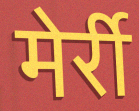
मेर्री